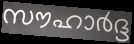
സൗഹാർദ്ദ